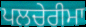
ਪਲਚੇਰੀਮਾ